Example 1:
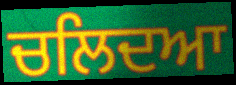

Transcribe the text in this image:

ਚਲਿਦਆ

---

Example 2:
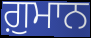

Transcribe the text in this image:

ਗ਼ੁਮਾਨ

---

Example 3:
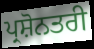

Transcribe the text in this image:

ਪ੍ਰਸ਼ੋਨਤਰੀ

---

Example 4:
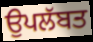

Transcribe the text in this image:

ਉਪਲੱਬਤ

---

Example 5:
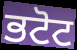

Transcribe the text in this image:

ਭਟੋਟ